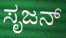
ಸೃಜನ್